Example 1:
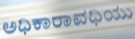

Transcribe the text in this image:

ಅಧಿಕಾರಾವಧಿಯು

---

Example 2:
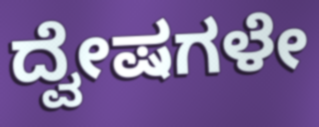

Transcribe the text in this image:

ದ್ವೇಷಗಳೇ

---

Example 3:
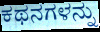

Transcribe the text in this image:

ಕಥನಗಳನ್ನು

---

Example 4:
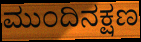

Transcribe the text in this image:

ಮುಂದಿನಕ್ಷಣ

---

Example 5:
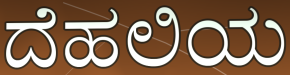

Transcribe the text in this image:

ದೆಹಲಿಯ